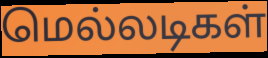
மெல்லடிகள்